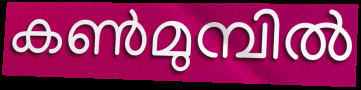
കൺമുമ്പിൽ